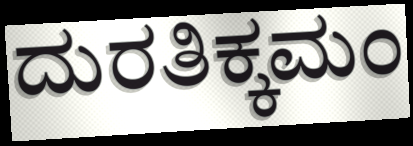
ದುರತಿಕ್ಕಮಂ